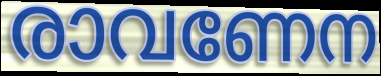
രാവണേന